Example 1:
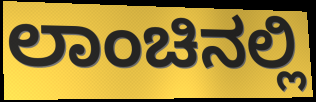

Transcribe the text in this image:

ಲಾಂಚಿನಲ್ಲಿ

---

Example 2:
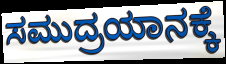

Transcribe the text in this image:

ಸಮುದ್ರಯಾನಕ್ಕೆ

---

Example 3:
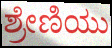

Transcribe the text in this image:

ಶ್ರೇಣಿಯು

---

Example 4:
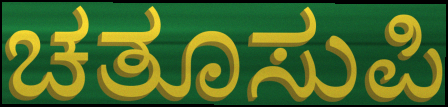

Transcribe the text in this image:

ಚತೂಸುಪಿ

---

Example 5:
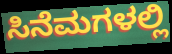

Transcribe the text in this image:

ಸಿನೆಮಗಳಲ್ಲಿ